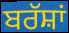
ਬਰੱਸ਼ਾਂ